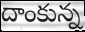
దాంకున్న